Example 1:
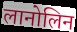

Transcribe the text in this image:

लानोलिन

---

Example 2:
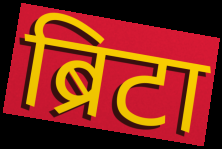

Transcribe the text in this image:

ब्रिटा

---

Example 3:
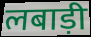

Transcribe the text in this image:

लबाड़ी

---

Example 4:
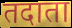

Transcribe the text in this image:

तदाता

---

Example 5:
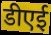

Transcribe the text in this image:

डीएई